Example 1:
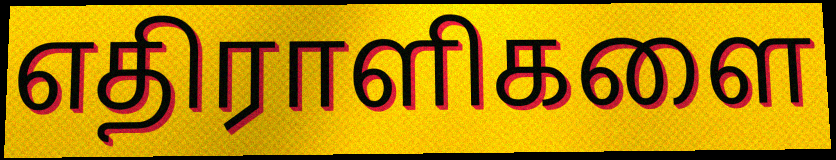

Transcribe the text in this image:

எதிராளிகளை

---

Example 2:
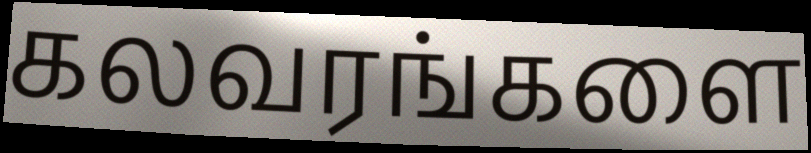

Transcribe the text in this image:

கலவரங்களை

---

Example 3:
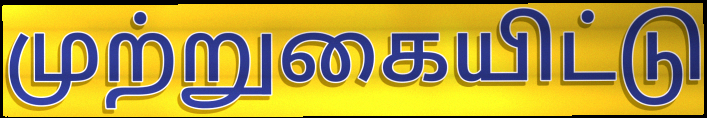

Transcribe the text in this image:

முற்றுகையிட்டு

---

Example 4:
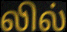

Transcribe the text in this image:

லில்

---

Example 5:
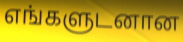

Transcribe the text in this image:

எங்களுடனான